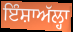
ਇੰਸ਼ਾਅੱਲ੍ਹਾ